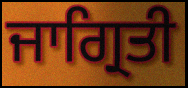
ਜਾਗ੍ਰਿਤੀ